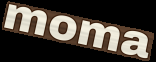
moma